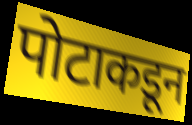
पोटाकडून